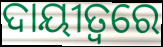
ଦାୟୀତ୍ଵରେ